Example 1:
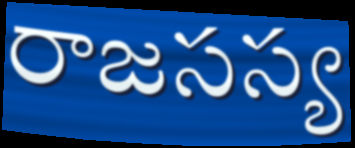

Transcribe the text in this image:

రాజసస్య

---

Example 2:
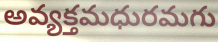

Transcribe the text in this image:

అవ్యక్తమధురమగు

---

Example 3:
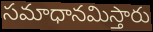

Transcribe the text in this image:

సమాధానమిస్తారు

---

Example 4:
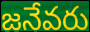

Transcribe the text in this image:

జనేవరు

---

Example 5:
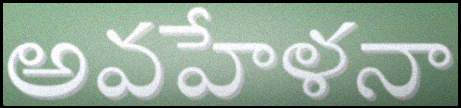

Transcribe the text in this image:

అవహేళనా